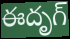
ఈదృగ్